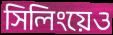
সিলিংয়েও